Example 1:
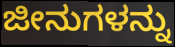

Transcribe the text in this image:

ಜೀನುಗಳನ್ನು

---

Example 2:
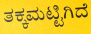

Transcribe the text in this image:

ತಕ್ಕಮಟ್ಟಿಗಿದೆ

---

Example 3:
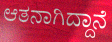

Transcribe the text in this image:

ಆತನಾಗಿದ್ದಾನೆ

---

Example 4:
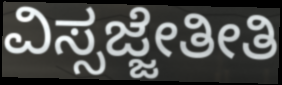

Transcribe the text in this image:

ವಿಸ್ಸಜ್ಜೇತೀತಿ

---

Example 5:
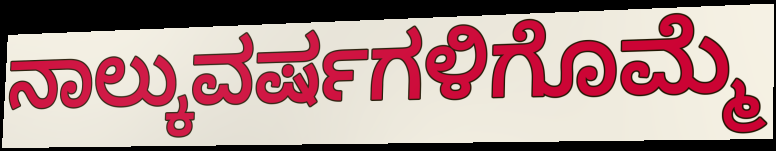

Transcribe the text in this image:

ನಾಲ್ಕುವರ್ಷಗಳಿಗೊಮ್ಮೆ